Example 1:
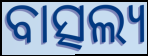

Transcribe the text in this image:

ବାତ୍ସଲ୍ଯ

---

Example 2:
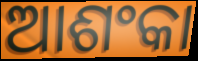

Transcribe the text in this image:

ଆଶଂକା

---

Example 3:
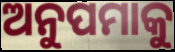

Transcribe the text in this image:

ଅନୁପମାକୁ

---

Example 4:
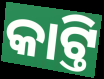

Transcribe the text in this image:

କାଟ୍ତି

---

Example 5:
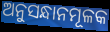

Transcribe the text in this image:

ଅନୁସନ୍ଧାନମୂଳକ